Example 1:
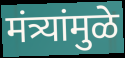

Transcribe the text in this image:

मंत्र्यांमुळे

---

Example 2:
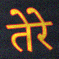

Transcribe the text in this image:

तेरे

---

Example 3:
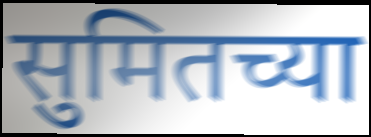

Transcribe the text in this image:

सुमितच्या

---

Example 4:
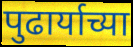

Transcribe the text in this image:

पुढार्याच्या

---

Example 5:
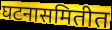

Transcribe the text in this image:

घटनासमितीत